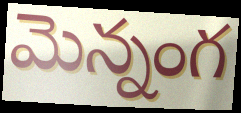
మెన్నంగ